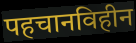
पहचानविहीन